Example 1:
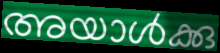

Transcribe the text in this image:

അയാൾക്കു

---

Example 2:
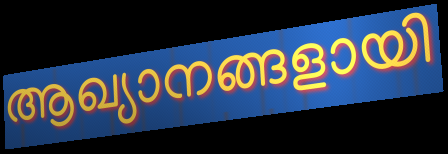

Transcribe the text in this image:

ആഖ്യാനങ്ങളായി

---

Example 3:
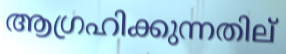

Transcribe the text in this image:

ആഗ്രഹിക്കുന്നതില്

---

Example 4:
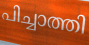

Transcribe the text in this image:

പിച്ചാത്തി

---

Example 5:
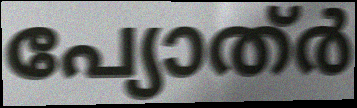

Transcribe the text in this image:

പ്യോത്ർ